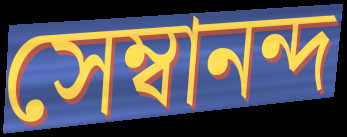
সেম্বানন্দ